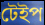
টেইপ